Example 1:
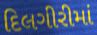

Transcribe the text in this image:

દિલગીરીમાં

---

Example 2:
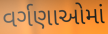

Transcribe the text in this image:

વર્ગણાઓમાં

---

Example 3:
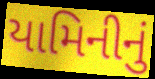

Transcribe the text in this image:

યામિનીનું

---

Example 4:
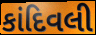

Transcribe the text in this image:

કાંદિવલી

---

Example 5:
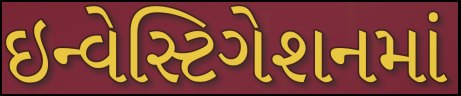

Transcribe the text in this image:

ઇન્વેસ્ટિગેશનમાં